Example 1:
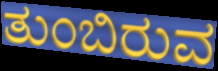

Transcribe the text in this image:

ತುಂಬಿರುವ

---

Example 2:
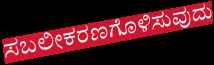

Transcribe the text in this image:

ಸಬಲೀಕರಣಗೊಳಿಸುವುದು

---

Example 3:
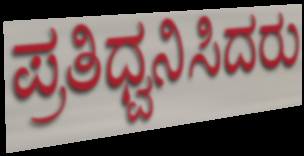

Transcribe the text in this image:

ಪ್ರತಿಧ್ವನಿಸಿದರು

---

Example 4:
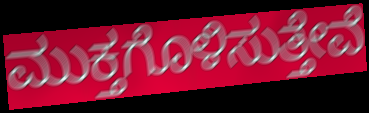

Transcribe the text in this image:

ಮುಕ್ತಗೊಳಿಸುತ್ತೇವೆ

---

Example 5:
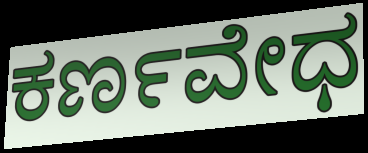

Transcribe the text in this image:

ಕರ್ಣವೇಧ